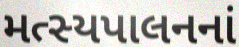
મત્સ્યપાલનનાં